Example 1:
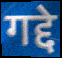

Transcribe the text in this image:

गद्दे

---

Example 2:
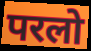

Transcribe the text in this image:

परलो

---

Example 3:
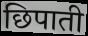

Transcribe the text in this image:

छिपाती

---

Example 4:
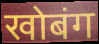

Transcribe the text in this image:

खोबंग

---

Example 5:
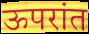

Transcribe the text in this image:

ऊपरांत